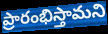
ప్రారంభిస్తామని